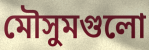
মৌসুমগুলো